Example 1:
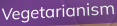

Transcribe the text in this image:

Vegetarianism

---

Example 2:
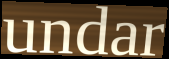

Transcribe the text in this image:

undar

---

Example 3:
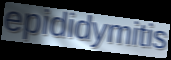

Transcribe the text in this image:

epididymitis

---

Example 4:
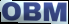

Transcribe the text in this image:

OBM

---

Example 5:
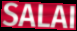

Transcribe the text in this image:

SALAI